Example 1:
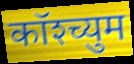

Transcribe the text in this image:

कॉश्च्युम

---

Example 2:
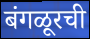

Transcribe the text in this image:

बंगळूरची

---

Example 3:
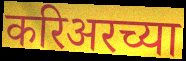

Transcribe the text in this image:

करिअरच्या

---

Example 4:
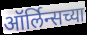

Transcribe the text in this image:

ऑर्लिन्सच्या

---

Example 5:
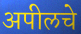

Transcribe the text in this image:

अपीलचे